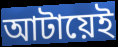
আটায়েই